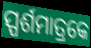
ସ୍ପର୍ଶମାତ୍ରକେ